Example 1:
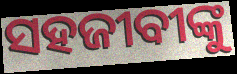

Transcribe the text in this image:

ସହଜୀବୀଙ୍କୁ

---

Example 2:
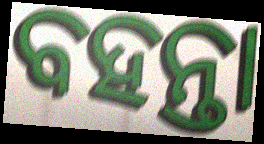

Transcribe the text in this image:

ବହନ୍ତା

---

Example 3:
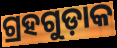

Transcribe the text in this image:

ଗ୍ରହଗୁଡ଼ାକ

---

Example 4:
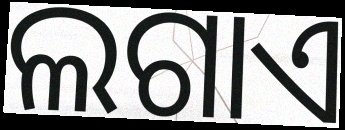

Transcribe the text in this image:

ଲଗାଏ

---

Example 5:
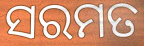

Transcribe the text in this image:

ସରମତ